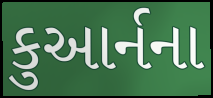
કુઆર્નના